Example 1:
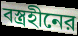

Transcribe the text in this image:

বস্ত্রহীনের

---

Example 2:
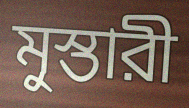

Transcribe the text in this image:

মুস্তারী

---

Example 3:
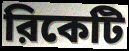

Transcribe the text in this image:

রিকেটি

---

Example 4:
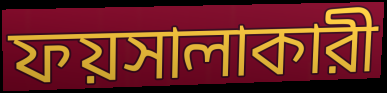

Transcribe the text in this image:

ফয়সালাকারী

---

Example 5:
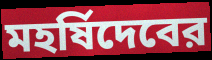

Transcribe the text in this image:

মহর্ষিদেবের